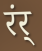
रंर्